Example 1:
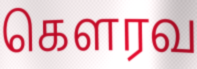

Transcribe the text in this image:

கெளரவ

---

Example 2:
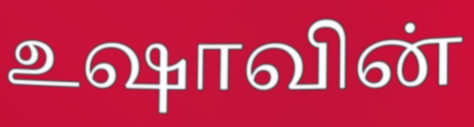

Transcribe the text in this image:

உஷாவின்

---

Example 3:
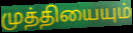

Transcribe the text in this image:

முத்தியையும்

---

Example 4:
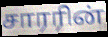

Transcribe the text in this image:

சாரரின்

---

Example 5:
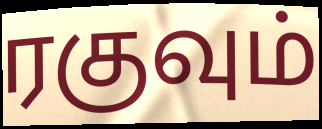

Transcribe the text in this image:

ரகுவும்